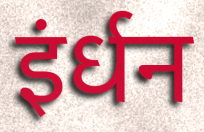
इंर्धन